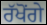
ਰੱਖੋਂਗੇ